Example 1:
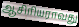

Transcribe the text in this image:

ஆசிரியராவது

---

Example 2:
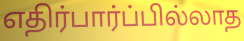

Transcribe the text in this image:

எதிர்பார்ப்பில்லாத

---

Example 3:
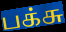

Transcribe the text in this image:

பக்சு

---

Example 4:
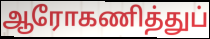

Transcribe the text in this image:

ஆரோகணித்துப்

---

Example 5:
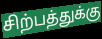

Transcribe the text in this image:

சிற்பத்துக்கு